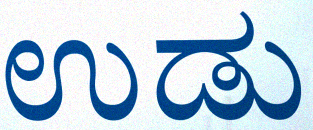
ಉಡು